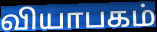
வியாபகம்